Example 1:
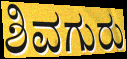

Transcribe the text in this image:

ಶಿವಗುರು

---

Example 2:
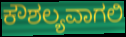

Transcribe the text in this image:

ಕೌಶಲ್ಯವಾಗಲಿ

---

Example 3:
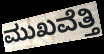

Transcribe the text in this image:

ಮುಖವೆತ್ತಿ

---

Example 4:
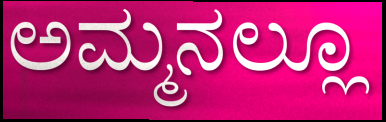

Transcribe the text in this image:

ಅಮ್ಮನಲ್ಲೂ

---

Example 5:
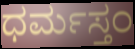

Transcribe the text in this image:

ಧರ್ಮಸ್ತಂ